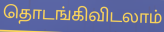
தொடங்கிவிடலாம்